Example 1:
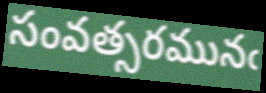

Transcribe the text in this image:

సంవత్సరమునఁ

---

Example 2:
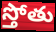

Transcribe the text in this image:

స్తోతు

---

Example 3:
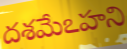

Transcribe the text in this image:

దశమేఽహని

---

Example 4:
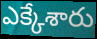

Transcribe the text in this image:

ఎక్కేశారు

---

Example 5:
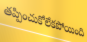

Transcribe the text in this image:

తప్పించుకోలేకపోయింది